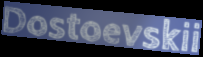
Dostoevskii